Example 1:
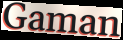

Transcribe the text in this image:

Gaman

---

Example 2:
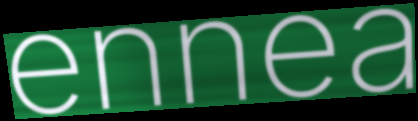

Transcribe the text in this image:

ennea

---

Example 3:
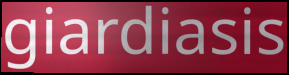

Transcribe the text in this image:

giardiasis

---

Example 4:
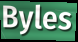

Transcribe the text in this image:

Byles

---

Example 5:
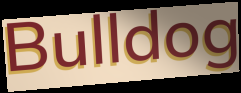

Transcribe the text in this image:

Bulldog